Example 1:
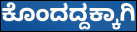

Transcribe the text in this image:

ಕೊಂದದ್ದಕ್ಕಾಗಿ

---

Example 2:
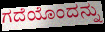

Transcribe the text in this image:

ಗದೆಯೊಂದನ್ನು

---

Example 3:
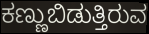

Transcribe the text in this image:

ಕಣ್ಣುಬಿಡುತ್ತಿರುವ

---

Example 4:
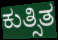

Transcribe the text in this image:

ಕುತ್ಸಿತ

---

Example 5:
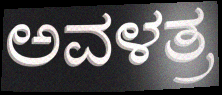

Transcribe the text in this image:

ಅವಳತ್ರ